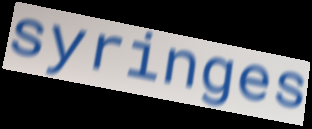
syringes